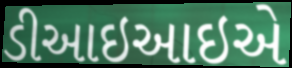
ડીઆઇઆઇએ